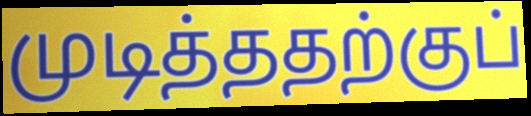
முடித்ததற்குப்